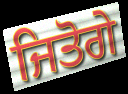
ਜਿਤੋਗੇ